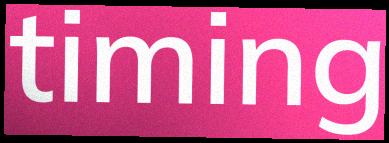
timing